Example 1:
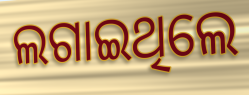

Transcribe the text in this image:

ଲଗାଇଥିଲେ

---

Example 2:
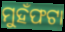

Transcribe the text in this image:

ମୁହଁଫଟା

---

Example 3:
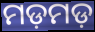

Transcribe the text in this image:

ମଡ଼ମଡ଼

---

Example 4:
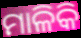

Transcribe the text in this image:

ମାଳିକି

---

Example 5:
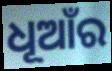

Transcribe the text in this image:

ଧୂଆଁର